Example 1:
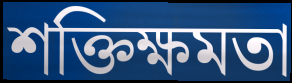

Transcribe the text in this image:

শক্তিক্ষমতা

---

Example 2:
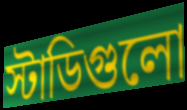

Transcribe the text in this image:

স্টাডিগুলো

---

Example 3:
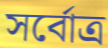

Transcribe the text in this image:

সর্বোত্র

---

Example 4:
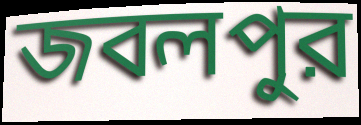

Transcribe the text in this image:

জবলপুর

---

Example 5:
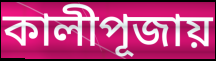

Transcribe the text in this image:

কালীপূজায়